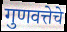
गुणवत्तेचे